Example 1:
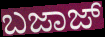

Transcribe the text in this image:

ಬಜಾಜ್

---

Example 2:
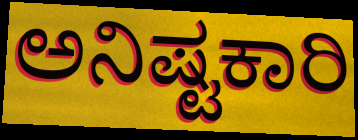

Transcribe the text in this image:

ಅನಿಷ್ಟಕಾರಿ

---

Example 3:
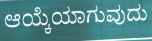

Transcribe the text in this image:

ಆಯ್ಕೆಯಾಗುವುದು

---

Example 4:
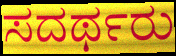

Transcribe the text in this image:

ಸದರ್ಥರು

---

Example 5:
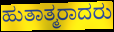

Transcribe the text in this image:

ಹುತಾತ್ಮರಾದರು